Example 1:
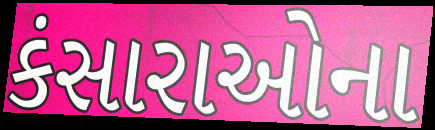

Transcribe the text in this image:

કંસારાઓના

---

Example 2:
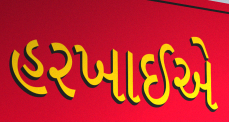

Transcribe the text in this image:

હરખાઈએ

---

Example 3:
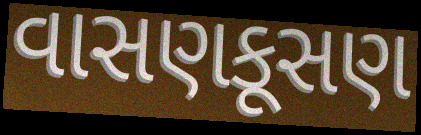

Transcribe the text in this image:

વાસણકૂસણ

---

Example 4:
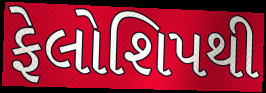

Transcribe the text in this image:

ફેલોશિપથી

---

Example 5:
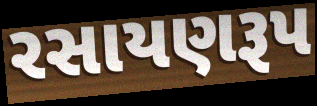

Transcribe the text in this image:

રસાયણરૂપ